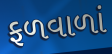
ફળવાળાં